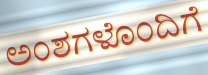
ಅಂಶಗಳೊಂದಿಗೆ